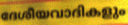
ദേശീയവാദികളും